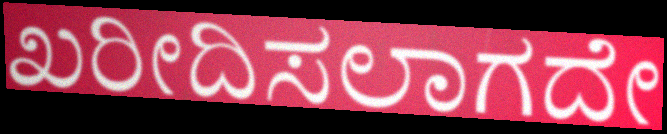
ಖರೀದಿಸಲಾಗದೇ